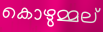
കൊഴുമ്മല്